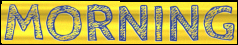
MORNING